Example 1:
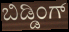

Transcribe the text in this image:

ಬಿಡ್ಡಿಂಗ್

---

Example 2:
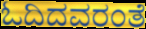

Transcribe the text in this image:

ಓದಿದವರಂತೆ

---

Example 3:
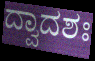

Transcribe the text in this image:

ದ್ವಾದಶಃ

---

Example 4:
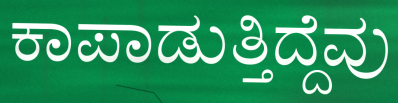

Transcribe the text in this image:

ಕಾಪಾಡುತ್ತಿದ್ದೆವು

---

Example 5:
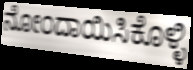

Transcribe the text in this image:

ನೋಂದಾಯಿಸಿಕೊಳ್ಳಿ